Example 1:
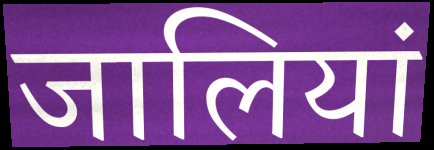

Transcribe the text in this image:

जालियां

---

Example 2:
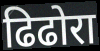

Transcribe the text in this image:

ढिढोरा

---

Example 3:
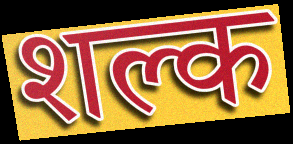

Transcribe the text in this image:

शल्क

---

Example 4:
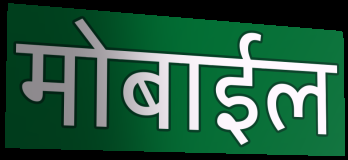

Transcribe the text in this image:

मोबाईल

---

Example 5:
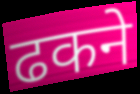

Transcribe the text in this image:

ढकने